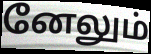
னேலும்